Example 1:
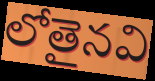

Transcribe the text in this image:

లోతైనవి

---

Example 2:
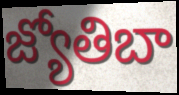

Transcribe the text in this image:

జ్యోతిబా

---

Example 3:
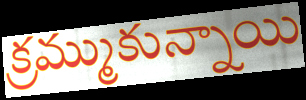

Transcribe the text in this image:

క్రమ్ముకున్నాయి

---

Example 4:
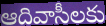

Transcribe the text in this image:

ఆదివాసీలకు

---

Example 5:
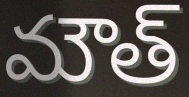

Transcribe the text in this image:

మౌత్